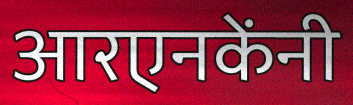
आरएनकेंनी